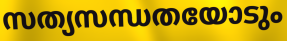
സത്യസന്ധതയോടും